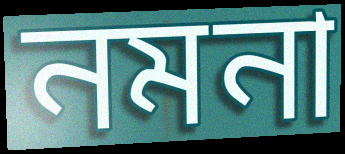
নমনা